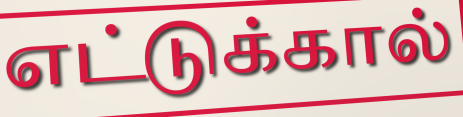
எட்டுக்கால்